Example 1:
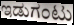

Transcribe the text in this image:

ಇಡುಗಂಟು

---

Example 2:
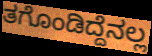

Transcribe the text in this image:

ತಗೊಂಡಿದ್ದೆನಲ್ಲ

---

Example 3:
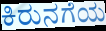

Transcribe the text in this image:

ಕಿರುನಗೆಯ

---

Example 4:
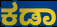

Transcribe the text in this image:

ಕಡಾ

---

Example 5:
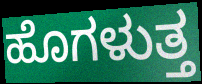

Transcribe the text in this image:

ಹೊಗಳುತ್ತ